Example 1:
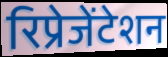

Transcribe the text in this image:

रिप्रेजेंटेशन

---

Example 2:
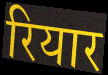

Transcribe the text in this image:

रियार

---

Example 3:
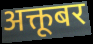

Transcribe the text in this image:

अक्तूबर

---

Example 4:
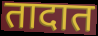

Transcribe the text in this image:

तादात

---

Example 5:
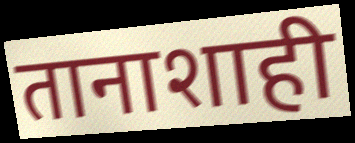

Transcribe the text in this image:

तानाशाही